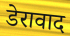
डेरावाद